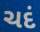
ચદં